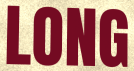
LONG